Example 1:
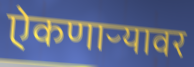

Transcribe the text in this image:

ऐकणाऱ्यावर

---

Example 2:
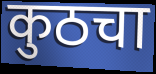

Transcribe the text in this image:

कुठचा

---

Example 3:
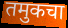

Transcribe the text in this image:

तमुकचा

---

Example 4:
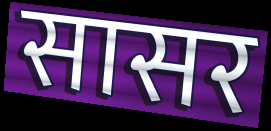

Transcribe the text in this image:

सासर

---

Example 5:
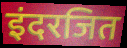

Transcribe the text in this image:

इंदरजित